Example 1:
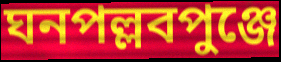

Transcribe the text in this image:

ঘনপল্লবপুঞ্জে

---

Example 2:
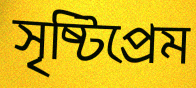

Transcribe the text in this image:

সৃষ্টিপ্রেম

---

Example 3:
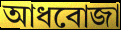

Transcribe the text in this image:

আধবোজা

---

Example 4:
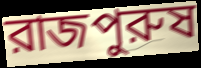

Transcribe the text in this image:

রাজপুরুষ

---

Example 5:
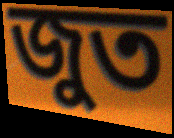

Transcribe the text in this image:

জুত